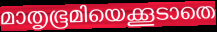
മാതൃഭൂമിയെക്കൂടാതെ